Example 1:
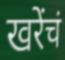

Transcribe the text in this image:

खरेंचं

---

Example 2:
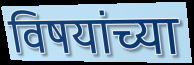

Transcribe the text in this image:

विषयांच्या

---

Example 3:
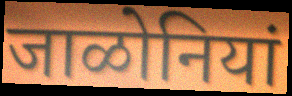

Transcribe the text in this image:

जाळोनियां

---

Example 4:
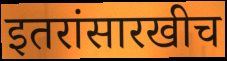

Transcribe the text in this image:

इतरांसारखीच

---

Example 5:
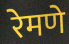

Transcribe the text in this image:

रेमणे